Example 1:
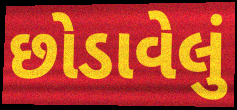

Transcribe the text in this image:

છોડાવેલું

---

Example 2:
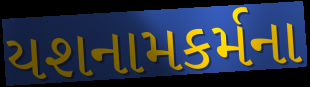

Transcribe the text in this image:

યશનામકર્મના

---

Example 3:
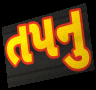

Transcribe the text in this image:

તપનુ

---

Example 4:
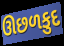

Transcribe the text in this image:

ઊછળકુદ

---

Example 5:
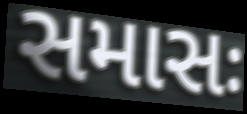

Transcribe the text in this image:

સમાસઃ